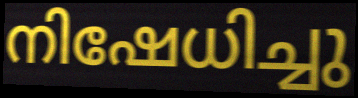
നിഷേധിച്ചു